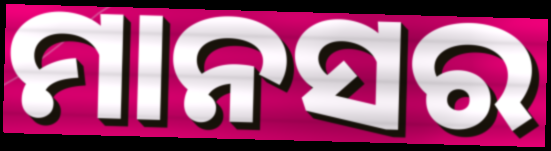
ମାନସର